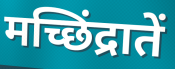
मच्छिंद्रातें